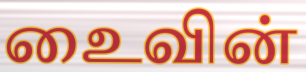
உைவின்